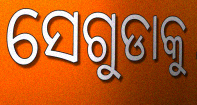
ସେଗୁଡାକୁ